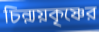
চিন্ময়কৃষ্ণের